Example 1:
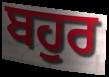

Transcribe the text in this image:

ਬਹੁਰ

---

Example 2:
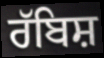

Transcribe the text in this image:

ਰੱਬਿਸ਼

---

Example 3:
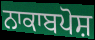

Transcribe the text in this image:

ਨਾਕਾਬਪੋਸ਼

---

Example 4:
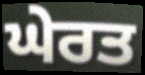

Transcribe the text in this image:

ਘੇਰਤ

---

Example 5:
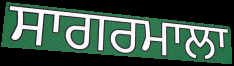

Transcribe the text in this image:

ਸਾਗਰਮਾਲਾ